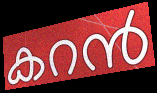
കറൻ